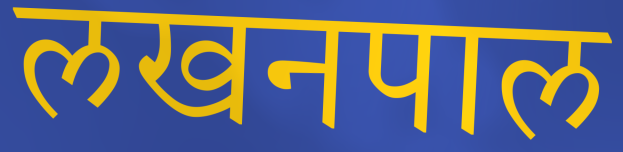
लखनपाल